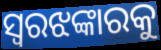
ସ୍ୱରଝଙ୍କାରକୁ